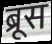
ब्रूस